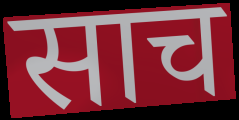
साच